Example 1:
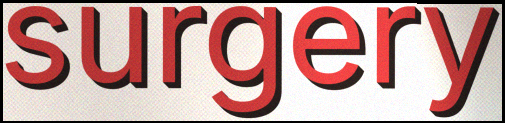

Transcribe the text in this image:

surgery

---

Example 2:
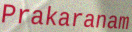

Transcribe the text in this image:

Prakaranam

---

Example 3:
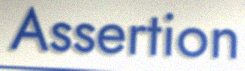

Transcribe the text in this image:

Assertion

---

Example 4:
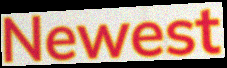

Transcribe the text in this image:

Newest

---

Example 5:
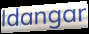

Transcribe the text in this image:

Idangar